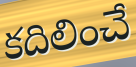
కదిలించే